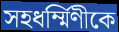
সহধর্ম্মিণীকে